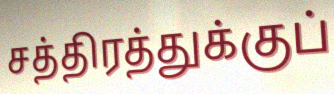
சத்திரத்துக்குப்